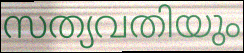
സത്യവതിയും